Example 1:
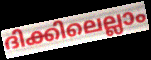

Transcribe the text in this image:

ദിക്കിലെല്ലാം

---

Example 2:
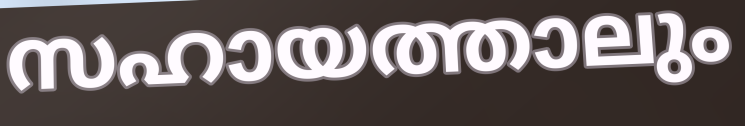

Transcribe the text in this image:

സഹായത്താലും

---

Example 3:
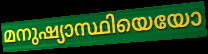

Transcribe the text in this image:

മനുഷ്യാസ്ഥിയെയോ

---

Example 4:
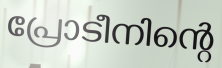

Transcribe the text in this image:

പ്രോടീനിന്റെ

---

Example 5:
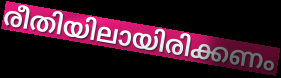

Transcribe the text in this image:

രീതിയിലായിരിക്കണം